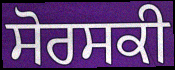
ਸੋਰਸਕੀ